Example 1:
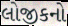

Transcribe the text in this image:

લોજીકનો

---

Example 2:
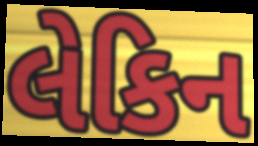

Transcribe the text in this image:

લેકિન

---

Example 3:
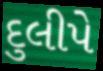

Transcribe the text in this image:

દુલીપે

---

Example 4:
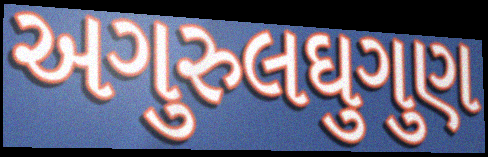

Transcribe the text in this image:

અગુરુલઘુગુણ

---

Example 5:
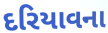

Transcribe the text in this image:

દરિયાવના